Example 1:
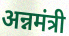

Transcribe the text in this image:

अन्नमंत्री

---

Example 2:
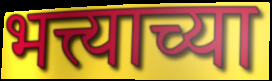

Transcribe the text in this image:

भत्त्याच्या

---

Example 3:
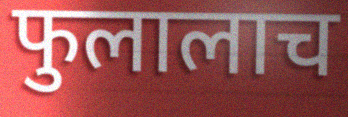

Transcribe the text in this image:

फुलालाच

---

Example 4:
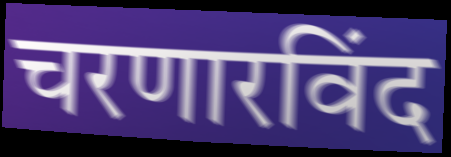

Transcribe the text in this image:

चरणारविंद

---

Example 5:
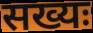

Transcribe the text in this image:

सख्यः